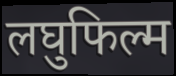
लघुफिल्म